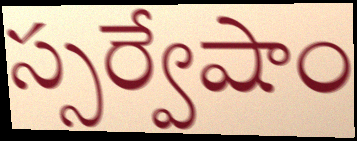
స్సర్వేషాం